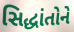
સિદ્ધાંતોને